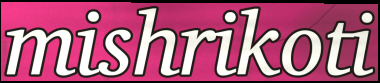
mishrikoti